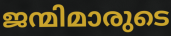
ജന്മിമാരുടെ